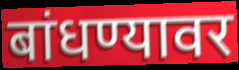
बांधण्यावर